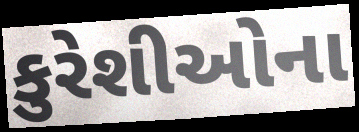
કુરેશીઓના